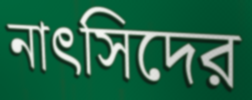
নাৎসিদের